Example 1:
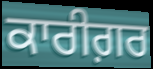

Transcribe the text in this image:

ਕਾਰੀਗ਼ਰ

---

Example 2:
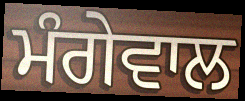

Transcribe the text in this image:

ਮੰਗੇਵਾਲ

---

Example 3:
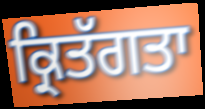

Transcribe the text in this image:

ਕ੍ਰਿਤੱਗਤਾ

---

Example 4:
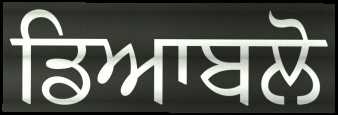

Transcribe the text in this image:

ਡਿਆਬਲੋ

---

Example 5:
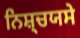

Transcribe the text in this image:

ਨਿਸ਼੍ਚਯਸੇ